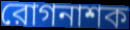
রোগনাশক